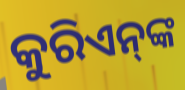
କୁରିଏନ୍‌ଙ୍କ